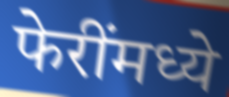
फेरींमध्ये